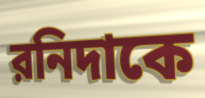
রনিদাকে